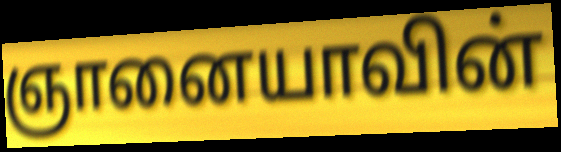
ஞானையாவின்